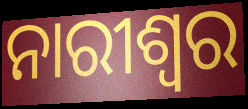
ନାରୀଶ୍ବର